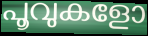
പൂവുകളോ